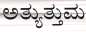
ಅತ್ಯುತ್ತುಮ